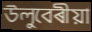
উলুবেৰীয়া